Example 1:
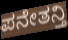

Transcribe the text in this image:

ಪನೇತನ್ತಿ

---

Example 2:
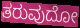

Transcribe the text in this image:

ತರುವುದೋ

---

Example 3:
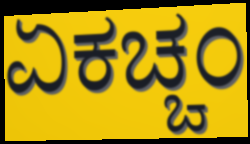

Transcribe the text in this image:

ಏಕಚ್ಚಂ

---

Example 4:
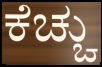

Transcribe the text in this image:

ಕೆಚ್ಚು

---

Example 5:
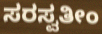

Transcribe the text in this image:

ಸರಸ್ವತೀಂ